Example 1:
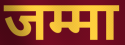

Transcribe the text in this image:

जम्मा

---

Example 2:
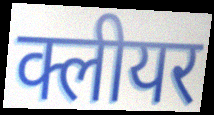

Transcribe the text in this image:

क्लीयर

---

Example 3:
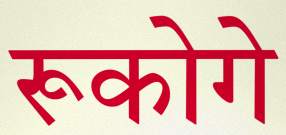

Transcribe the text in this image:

रूकोगे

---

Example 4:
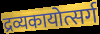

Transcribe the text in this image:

द्रव्यकायोत्सर्ग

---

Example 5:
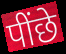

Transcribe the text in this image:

पींछे